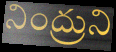
నింద్రుని